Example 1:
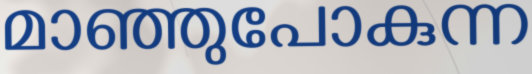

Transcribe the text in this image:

മാഞ്ഞുപോകുന്ന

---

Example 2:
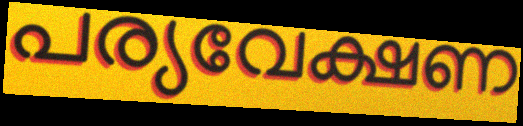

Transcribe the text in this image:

പര്യവേക്ഷണ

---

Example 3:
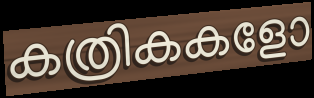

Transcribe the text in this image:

കത്രികകളോ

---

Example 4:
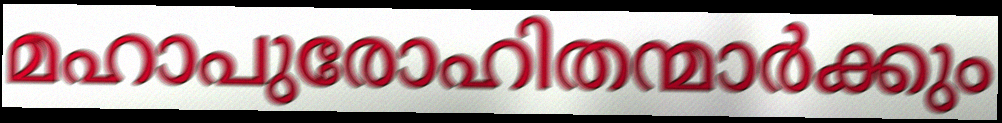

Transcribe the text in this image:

മഹാപുരോഹിതന്മാർക്കും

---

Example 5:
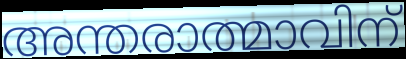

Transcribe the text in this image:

അന്തരാത്മാവിന്